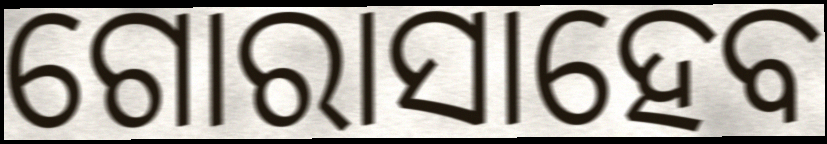
ଗୋରାସାହେବ